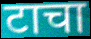
टाचा